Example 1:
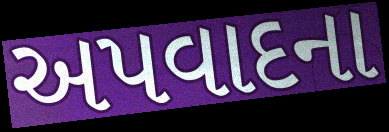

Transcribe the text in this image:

અપવાદના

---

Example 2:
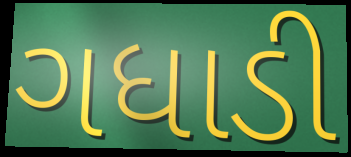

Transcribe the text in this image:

ગધાડી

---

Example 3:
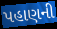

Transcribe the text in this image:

પહાણની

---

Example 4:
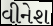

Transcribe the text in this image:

વીનેશ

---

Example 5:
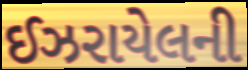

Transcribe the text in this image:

ઈઝરાયેલની